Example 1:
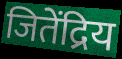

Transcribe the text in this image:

जितेंद्रिय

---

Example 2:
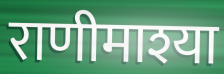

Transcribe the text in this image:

राणीमाश्या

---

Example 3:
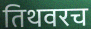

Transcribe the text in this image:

तिथवरच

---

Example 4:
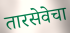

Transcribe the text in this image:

तारसेवेचा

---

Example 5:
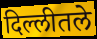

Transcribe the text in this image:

दिल्लीतले